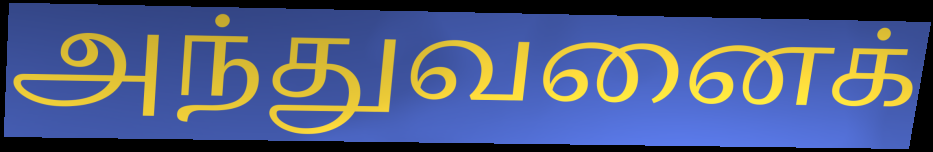
அந்துவனைக்